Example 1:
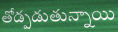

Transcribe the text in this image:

తోడ్పడుతున్నాయి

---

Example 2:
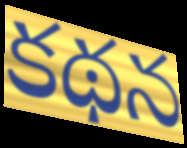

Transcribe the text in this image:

కథన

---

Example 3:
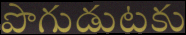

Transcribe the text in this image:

పొగుడుటకు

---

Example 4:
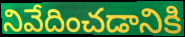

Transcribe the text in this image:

నివేదించడానికి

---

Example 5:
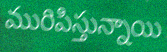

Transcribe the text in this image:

మురిపిస్తున్నాయి